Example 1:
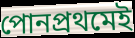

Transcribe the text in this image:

পোনপ্ৰথমেই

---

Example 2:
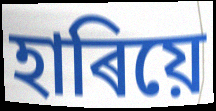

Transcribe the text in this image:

হাৰিয়ে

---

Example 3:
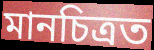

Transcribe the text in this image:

মানচিত্ৰত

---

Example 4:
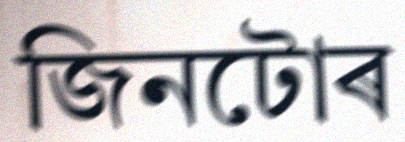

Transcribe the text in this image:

জিনটোৰ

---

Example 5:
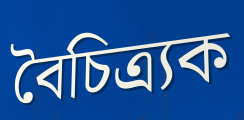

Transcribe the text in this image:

বৈচিত্ৰ্যক